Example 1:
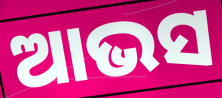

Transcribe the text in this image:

ଆଭସ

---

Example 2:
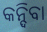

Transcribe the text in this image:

କନ୍ଦିବା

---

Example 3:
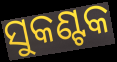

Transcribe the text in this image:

ସୁକଣ୍ଟକ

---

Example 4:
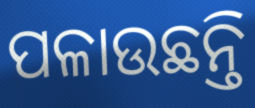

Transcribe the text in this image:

ପଳାଉଛନ୍ତି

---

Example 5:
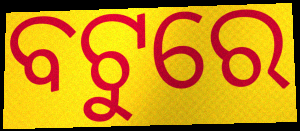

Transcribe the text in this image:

ବଟୁରେ